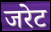
जरेट